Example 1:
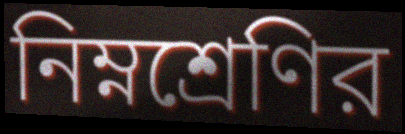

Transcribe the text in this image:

নিম্নশ্রেণির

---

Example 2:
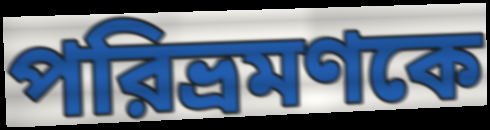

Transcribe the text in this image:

পরিভ্রমণকে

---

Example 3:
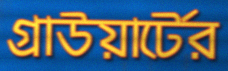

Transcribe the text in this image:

গ্রাউয়ার্টের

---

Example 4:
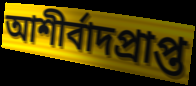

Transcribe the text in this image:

আশীর্বাদপ্রাপ্ত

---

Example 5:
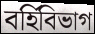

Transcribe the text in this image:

বর্হিবিভাগ